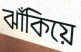
ঝাঁকিয়ে